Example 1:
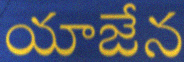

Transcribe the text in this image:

యాజేన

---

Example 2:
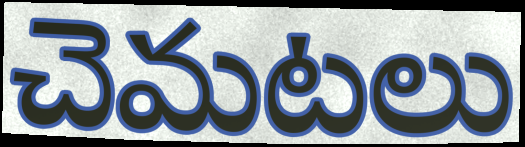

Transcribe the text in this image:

చెమటలు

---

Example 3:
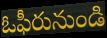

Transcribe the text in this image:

ఓఫీరునుండి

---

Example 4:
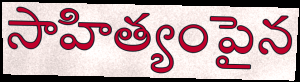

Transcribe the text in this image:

సాహిత్యంపైన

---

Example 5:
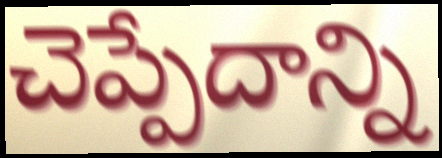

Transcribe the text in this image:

చెప్పేదాన్ని